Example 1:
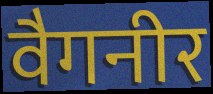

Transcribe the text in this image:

वैगनीर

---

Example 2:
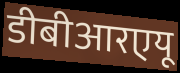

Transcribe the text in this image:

डीबीआरएयू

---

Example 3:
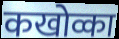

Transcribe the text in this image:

कखोव्का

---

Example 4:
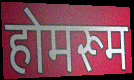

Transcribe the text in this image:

होमरूम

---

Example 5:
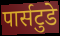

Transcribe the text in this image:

पार्सटुडे